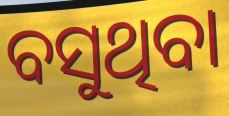
ବସୁଥିବା